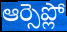
ఆర్సెప్లో